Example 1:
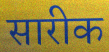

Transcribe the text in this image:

सारीक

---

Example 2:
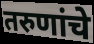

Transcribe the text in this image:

तरुणांचे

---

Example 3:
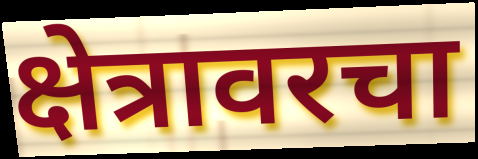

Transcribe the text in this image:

क्षेत्रावरचा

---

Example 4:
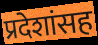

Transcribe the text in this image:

प्रदेशांसह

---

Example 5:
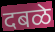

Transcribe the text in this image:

दबळे